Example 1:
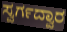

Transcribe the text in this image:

ಸ್ವರ್ಗದ್ವಾರ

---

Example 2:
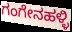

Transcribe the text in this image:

ಗಂಗೇನಹಳ್ಳಿ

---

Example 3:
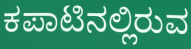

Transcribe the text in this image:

ಕಪಾಟಿನಲ್ಲಿರುವ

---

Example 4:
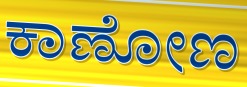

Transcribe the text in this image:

ಕಾಣೋಣ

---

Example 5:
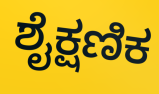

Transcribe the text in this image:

ಶೈಕ್ಷಣಿಕ